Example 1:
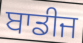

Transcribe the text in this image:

ਬਾਡੀਜ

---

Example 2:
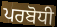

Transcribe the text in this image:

ਪਰਬੋਧੀ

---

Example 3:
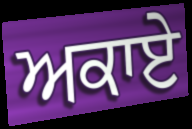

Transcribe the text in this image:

ਅਕਾਏ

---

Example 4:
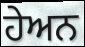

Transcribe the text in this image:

ਹੇਅਨ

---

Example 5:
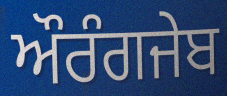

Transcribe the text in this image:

ਔਰੰਗਜੇਬ